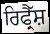
ਰਿਫ੍ਰੈੱਸ਼